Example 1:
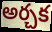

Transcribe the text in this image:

అర్చక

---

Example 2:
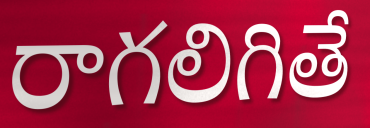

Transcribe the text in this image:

రాగలిగితే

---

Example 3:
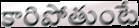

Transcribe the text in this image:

కారిపోతుంటే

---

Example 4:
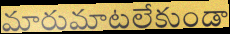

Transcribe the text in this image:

మారుమాటలేకుండా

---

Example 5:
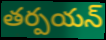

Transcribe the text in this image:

తర్పయన్